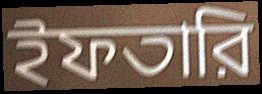
ইফতারি